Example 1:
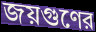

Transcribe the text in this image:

জয়গুণের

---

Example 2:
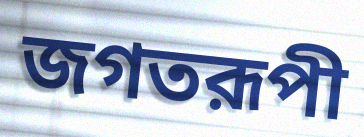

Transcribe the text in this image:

জগতরূপী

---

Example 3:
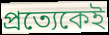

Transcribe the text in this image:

প্রত্যেকেই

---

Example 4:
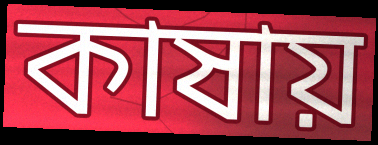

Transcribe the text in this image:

কাষায়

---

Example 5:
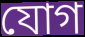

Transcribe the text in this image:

যোগ